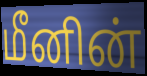
மீனின்